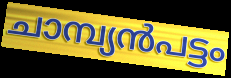
ചാമ്പ്യൻപട്ടം